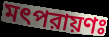
মৎপরায়ণঃ